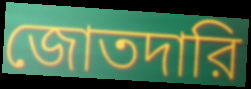
জোতদারি